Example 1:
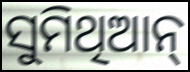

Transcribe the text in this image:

ସୁମିଥିଆନ୍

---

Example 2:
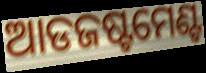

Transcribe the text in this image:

ଆଡଜଷ୍ଟମେଣ୍ଟ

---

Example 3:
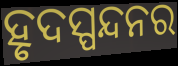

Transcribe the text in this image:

ହୃଦସ୍ପନ୍ଦନର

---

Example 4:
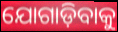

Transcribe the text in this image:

ଯୋଗାଡ଼ିବାକୁ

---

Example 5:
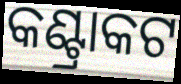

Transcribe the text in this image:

କଣ୍ଟ୍ରାକଟ